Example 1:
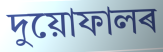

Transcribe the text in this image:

দুয়োফালৰ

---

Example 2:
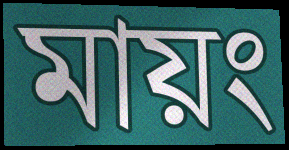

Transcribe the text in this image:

মায়ং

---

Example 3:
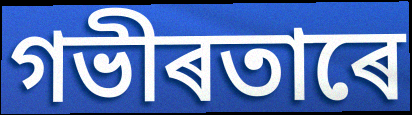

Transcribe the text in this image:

গভীৰতাৰে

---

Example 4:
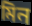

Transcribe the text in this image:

মিন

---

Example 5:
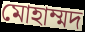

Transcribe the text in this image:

মোহাম্মদ